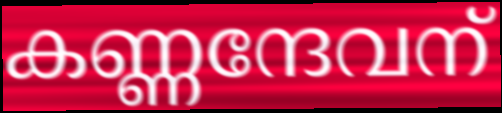
കണ്ണന്ദേവന്